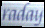
raday